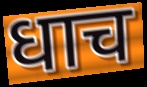
धाच